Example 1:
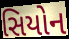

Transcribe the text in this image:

સિયોન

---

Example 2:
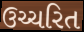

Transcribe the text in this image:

ઉચ્ચરિત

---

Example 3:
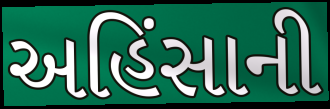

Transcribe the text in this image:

અહિંસાની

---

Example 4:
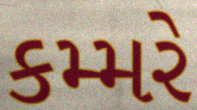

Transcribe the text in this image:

કમ્મરે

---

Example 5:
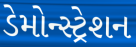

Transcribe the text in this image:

ડેમોન્સ્ટ્રેશન